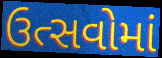
ઉત્સવોમાં